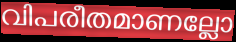
വിപരീതമാണല്ലോ